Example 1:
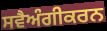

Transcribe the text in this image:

ਸਵੈਅੰਗੀਕਰਨ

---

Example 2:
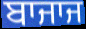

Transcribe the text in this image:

ਬਾਜਾਜ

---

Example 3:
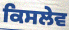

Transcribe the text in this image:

ਕਿਸਲੇਵ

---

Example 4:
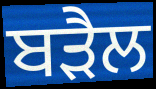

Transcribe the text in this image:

ਬੜੈਲ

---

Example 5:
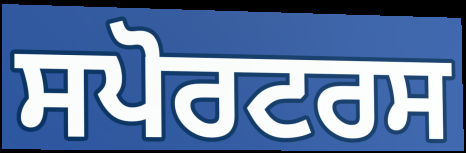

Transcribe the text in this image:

ਸਪੋਰਟਰਸ